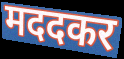
मददकर